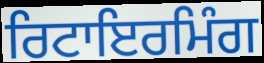
ਰਿਟਾਇਰਮਿੰਗ